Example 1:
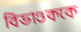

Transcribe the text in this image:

বিভাণ্ডককে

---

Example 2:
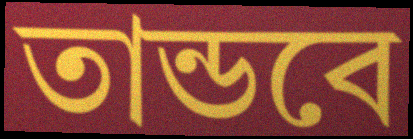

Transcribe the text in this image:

তান্ডবে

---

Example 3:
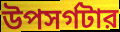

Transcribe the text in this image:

উপসর্গটার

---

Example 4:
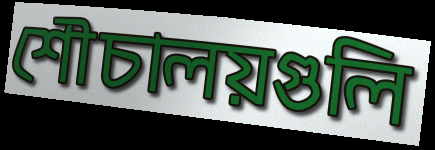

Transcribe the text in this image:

শৌচালয়গুলি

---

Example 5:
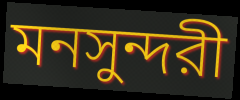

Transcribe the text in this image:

মনসুন্দরী